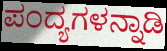
ಪಂದ್ಯಗಳನ್ನಾಡಿ